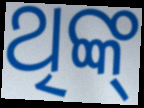
ଥିଙ୍କ୍